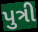
પુત્રી